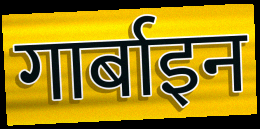
गार्बाइन